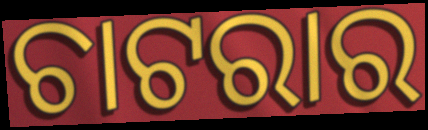
ଚାଟରାର